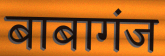
बाबागंज